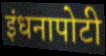
इंधनापोटी